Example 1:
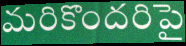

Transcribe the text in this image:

మరికొందరిపై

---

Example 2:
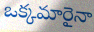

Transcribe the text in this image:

ఒక్కమారైనా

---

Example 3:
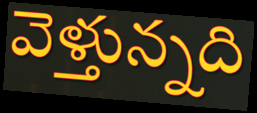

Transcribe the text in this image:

వెళ్తున్నది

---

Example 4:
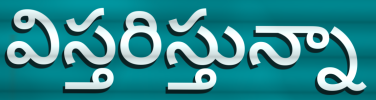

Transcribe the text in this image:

విస్తరిస్తున్నా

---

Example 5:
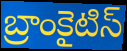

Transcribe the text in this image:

బ్రాంకైటిస్